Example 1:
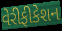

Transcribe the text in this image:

વેરીફીકેશન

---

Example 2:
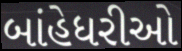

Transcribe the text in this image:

બાંહેધરીઓ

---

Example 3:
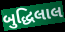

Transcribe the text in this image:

બુદ્ધિલાલ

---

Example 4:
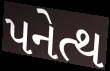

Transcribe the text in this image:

પનેત્થ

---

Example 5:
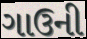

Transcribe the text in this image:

ગાઉની